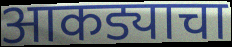
आकड्याचा